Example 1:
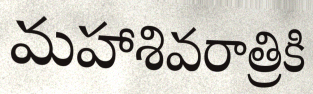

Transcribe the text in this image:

మహాశివరాత్రికి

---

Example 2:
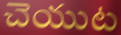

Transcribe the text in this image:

చెయుట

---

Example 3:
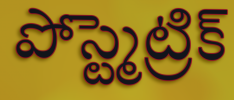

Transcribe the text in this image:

పోస్ట్మెట్రిక్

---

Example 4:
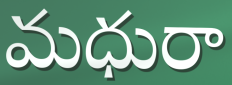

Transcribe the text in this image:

మధురా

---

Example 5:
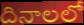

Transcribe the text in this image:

దినాలలో